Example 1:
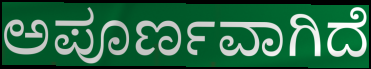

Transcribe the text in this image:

ಅಪೂರ್ಣವಾಗಿದೆ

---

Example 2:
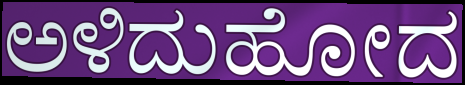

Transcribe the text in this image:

ಅಳಿದುಹೋದ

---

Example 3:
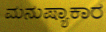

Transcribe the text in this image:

ಮನುಷ್ಯಾಕಾರ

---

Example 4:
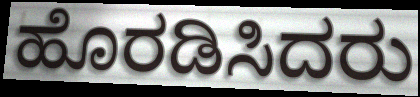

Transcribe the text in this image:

ಹೊರಡಿಸಿದರು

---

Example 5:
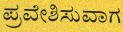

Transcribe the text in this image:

ಪ್ರವೇಶಿಸುವಾಗ